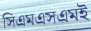
সিএমএসএমই